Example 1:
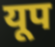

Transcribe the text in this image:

यूप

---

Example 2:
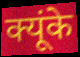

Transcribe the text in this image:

क्यूंके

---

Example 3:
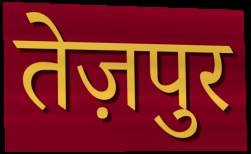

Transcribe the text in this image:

तेज़पुर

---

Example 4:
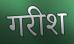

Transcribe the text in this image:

गरीश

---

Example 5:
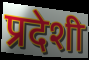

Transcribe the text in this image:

प्रदेशी